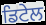
ਡਿਟੇਲ